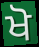
ਖੋ